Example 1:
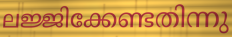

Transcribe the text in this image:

ലജ്ജിക്കേണ്ടതിന്നു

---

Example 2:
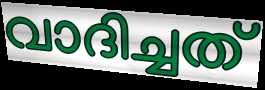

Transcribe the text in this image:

വാദിച്ചത്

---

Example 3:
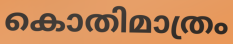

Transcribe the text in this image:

കൊതിമാത്രം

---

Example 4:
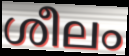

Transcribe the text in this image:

ശീലം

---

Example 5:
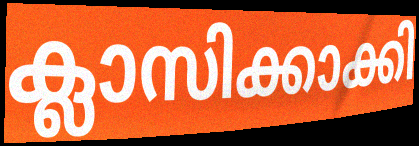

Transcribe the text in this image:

ക്ലാസിക്കാക്കി